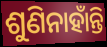
ଶୁଣିନାହାଁନ୍ତି